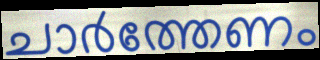
ചാർത്തേണം